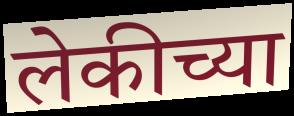
लेकीच्या